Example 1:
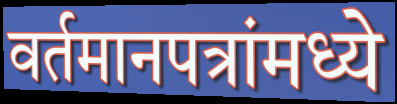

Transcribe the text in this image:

वर्तमानपत्रांमध्ये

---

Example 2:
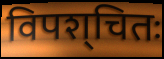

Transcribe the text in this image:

विपश्चितः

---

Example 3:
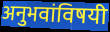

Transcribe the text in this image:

अनुभवांविषयी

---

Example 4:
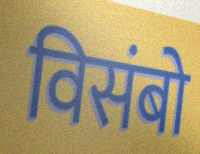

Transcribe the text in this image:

विसंबो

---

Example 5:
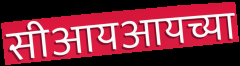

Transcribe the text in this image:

सीआयआयच्या